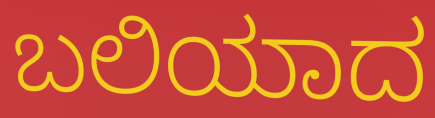
ಬಲಿಯಾದ